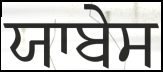
ਯਾਬੇਸ